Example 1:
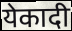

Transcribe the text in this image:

येकादी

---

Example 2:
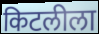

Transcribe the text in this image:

किटलीला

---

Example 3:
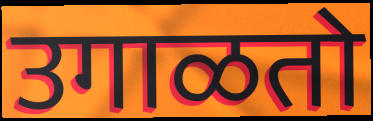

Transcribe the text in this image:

उगाळतो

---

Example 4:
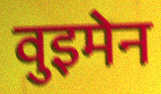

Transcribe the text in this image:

वुइमेन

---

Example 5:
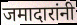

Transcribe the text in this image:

जमादारांनी